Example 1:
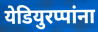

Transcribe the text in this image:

येडियुरप्पांना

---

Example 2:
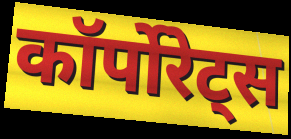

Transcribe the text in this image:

कॉर्पोरेट्स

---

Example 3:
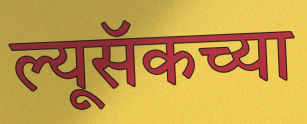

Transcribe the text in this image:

ल्यूसॅकच्या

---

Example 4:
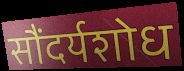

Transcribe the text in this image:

सौंदर्यशोध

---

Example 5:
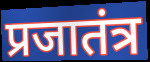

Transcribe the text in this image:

प्रजातंत्र